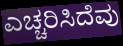
ಎಚ್ಚರಿಸಿದೆವು